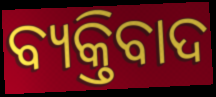
ବ୍ୟକ୍ତିବାଦ